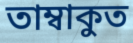
তাম্বাকুত